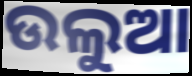
ଉଲୁଆ